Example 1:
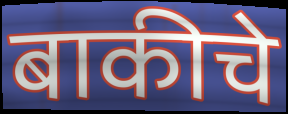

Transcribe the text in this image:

बाकीचे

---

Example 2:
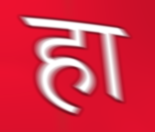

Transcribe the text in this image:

हा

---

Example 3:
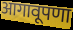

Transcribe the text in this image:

आगावूपणा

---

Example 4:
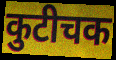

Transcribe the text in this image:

कुटीचक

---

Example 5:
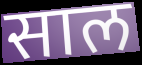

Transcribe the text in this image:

साल